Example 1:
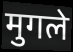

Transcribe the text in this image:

मुगले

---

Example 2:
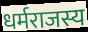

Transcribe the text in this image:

धर्मराजस्य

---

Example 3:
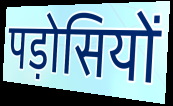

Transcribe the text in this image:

पड़ोसियों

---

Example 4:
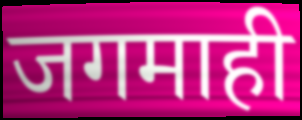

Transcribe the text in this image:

जगमाही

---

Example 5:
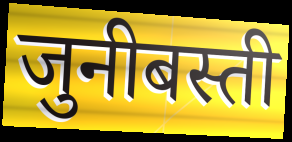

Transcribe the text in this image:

जुनीबस्ती